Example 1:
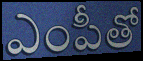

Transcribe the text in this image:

ఎంపీతో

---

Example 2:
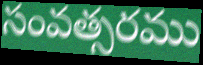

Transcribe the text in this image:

సంవత్సరము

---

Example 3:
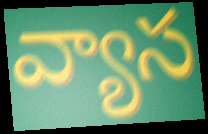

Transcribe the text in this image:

వ్యాస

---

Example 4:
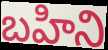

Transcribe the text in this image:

బహిని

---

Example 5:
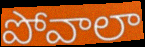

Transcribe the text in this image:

పోవాలా